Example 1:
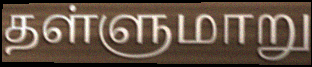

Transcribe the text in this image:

தள்ளுமாறு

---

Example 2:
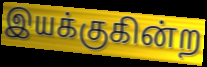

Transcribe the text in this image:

இயக்குகின்ற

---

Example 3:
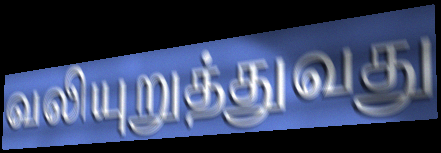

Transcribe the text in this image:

வலியுறுத்துவது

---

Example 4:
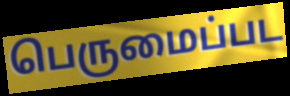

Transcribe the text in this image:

பெருமைப்பட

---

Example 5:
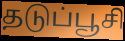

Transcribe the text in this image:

தடுப்பூசி